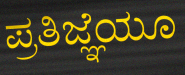
ಪ್ರತಿಜ್ಞೆಯೂ